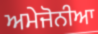
ਅਮੇਜੋਨੀਆ